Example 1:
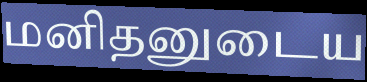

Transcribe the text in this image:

மனிதனுடைய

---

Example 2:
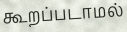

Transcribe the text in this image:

கூறப்படாமல்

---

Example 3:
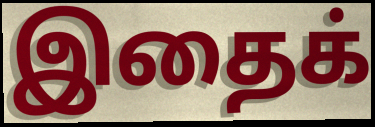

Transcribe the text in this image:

இதைக்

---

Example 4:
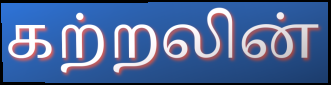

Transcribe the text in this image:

கற்றலின்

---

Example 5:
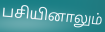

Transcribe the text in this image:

பசியினாலும்